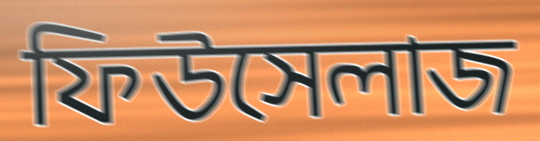
ফিউসেলাজ